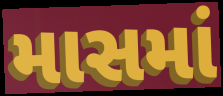
માસમાં